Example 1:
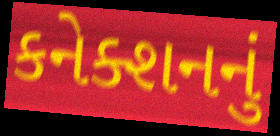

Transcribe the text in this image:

કનેક્શનનું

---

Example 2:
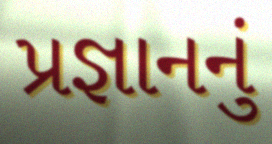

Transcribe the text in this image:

પ્રજ્ઞાનનું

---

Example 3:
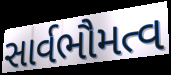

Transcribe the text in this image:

સાર્વભૌમત્વ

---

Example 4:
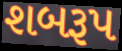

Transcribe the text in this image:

શબરૂપ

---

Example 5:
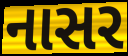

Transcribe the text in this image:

નાસર